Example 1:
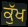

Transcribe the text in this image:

ਕੁੱਖ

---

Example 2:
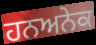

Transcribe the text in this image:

ਹਨਅਨੇਕ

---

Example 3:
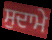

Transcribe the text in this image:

ਸੁਦਾਮੇ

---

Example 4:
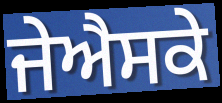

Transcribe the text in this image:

ਜੇਐਸਕੇ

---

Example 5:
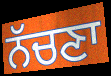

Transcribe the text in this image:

ਨੱਚਣਾ